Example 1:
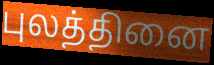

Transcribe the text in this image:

புலத்தினை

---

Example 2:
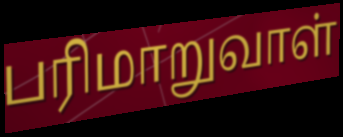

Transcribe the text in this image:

பரிமாறுவாள்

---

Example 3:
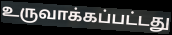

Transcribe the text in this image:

உருவாக்கப்பட்டது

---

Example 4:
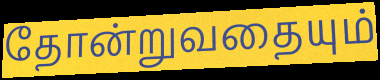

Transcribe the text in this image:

தோன்றுவதையும்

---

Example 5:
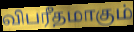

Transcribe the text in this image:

விபரீதமாகும்